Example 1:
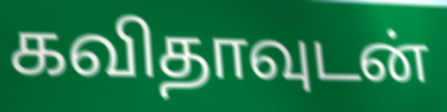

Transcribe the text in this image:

கவிதாவுடன்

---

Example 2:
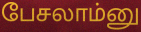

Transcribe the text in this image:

பேசலாம்னு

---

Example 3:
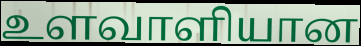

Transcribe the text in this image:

உளவாளியான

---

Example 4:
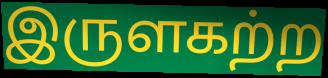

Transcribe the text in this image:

இருளகற்ற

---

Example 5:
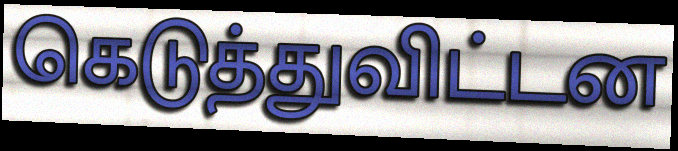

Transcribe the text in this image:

கெடுத்துவிட்டன